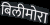
बिलीमोरा